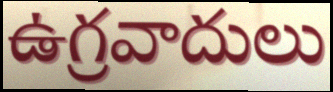
ఉగ్రవాదులు